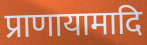
प्राणायामादि